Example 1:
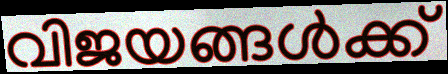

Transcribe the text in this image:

വിജയങ്ങൾക്ക്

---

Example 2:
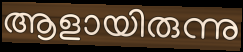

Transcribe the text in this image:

ആളായിരുന്നു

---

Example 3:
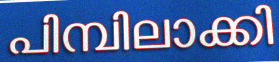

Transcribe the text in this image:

പിമ്പിലാക്കി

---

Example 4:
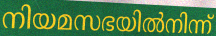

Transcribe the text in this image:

നിയമസഭയിൽനിന്ന്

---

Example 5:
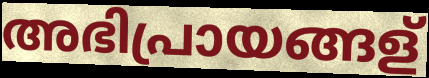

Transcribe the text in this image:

അഭിപ്രായങ്ങള്